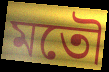
মতৌ